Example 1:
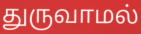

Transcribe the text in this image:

துருவாமல்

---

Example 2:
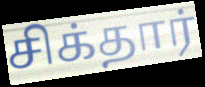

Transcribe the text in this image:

சிக்தார்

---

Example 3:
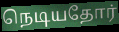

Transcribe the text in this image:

நெடியதோர்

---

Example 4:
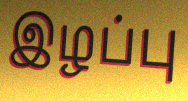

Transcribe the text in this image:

இழப்பு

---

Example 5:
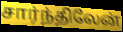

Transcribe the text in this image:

சார்ந்திலேன்